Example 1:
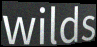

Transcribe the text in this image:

wilds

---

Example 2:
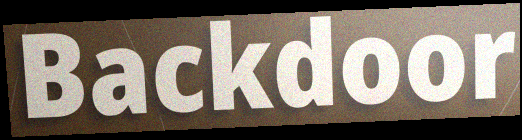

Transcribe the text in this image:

Backdoor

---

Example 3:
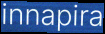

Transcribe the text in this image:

innapira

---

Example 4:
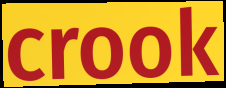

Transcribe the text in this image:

crook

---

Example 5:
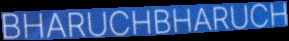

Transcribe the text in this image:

BHARUCHBHARUCH